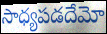
సాధ్యపడదేమో